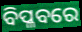
ବିପ୍ଳବରେ